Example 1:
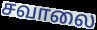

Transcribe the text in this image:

சவாலை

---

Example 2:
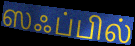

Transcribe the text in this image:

ஸஃப்பில்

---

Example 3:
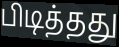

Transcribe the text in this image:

பிடித்தது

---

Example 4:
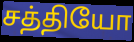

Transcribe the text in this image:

சத்தியோ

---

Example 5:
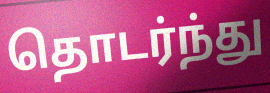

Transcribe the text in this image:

தொடர்ந்து